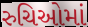
રુચિઓમાં